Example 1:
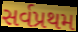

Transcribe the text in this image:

સર્વપ્રથમ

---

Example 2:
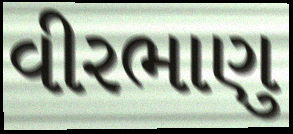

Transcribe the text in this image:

વીરભાણુ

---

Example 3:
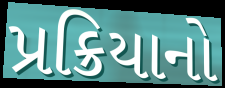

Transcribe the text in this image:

પ્રક્રિયાનો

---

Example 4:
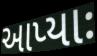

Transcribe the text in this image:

આપ્યાઃ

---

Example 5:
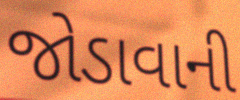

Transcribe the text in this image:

જોડાવાની